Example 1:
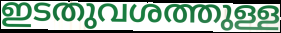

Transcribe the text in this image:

ഇടതുവശത്തുള്ള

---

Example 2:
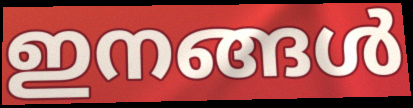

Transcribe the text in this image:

ഇനങ്ങൾ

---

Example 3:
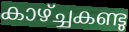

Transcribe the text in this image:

കാഴ്ച്ചകണ്ടു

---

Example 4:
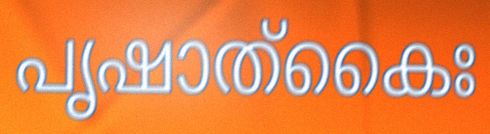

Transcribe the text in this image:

പൃഷാത്കൈഃ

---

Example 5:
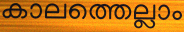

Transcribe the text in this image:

കാലത്തെല്ലാം